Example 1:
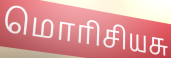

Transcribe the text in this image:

மொரிசியசு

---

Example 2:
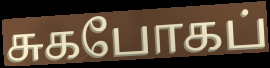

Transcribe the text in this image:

சுகபோகப்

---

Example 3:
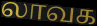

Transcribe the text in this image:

லாவக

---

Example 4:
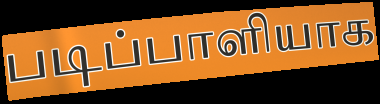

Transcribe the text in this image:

படிப்பாளியாக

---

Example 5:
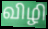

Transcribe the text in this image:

விழி